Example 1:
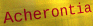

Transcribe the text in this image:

Acherontia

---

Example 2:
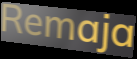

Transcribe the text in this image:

Remaja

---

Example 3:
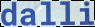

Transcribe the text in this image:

dalli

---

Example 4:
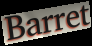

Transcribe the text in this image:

Barret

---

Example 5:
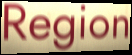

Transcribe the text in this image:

Region